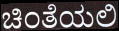
ಚಿಂತೆಯಲಿ